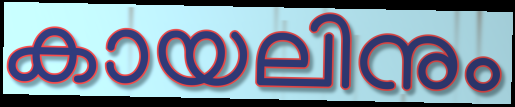
കായലിനും